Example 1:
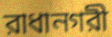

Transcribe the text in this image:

রাধানগরী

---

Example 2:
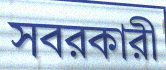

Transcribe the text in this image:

সবরকারী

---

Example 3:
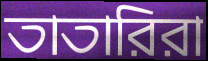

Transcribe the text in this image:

তাতারিরা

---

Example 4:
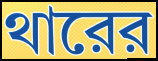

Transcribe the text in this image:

থারের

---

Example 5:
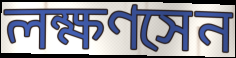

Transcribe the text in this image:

লক্ষণসেন